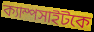
ক্যাম্পসাইটকে